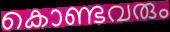
കൊണ്ടവരും